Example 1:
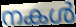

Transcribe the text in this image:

നകൾ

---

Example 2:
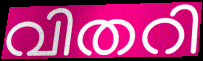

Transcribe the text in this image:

വിതറി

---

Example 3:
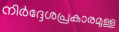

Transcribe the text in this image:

നിർദ്ദേശപ്രകാരമുള്ള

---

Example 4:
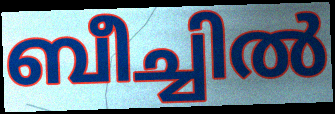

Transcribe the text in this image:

ബീച്ചിൽ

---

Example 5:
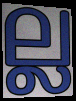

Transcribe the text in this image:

ല്ല